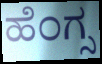
ಹೆಂಗ್ಸ